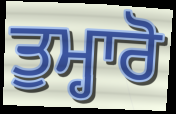
ਤੁਮ੍ਹ੍ਹਾਰੋ